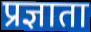
प्रज्ञाता